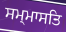
ਸਮ੍ਮਾਸਤਿ